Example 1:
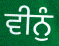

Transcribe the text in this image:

ਵੀਨੁੰ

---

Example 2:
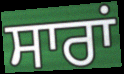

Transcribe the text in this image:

ਸਾਰਾਂ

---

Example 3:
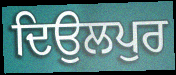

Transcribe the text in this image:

ਦਿਉਲਪੁਰ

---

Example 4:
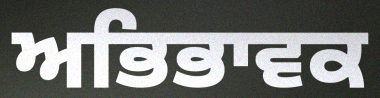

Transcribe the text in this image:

ਅਭਿਭਾਵਕ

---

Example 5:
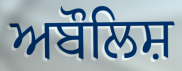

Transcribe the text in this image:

ਅਬੌਲਿਸ਼